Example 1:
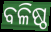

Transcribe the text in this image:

ବଳିଷ୍ଠ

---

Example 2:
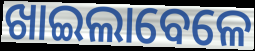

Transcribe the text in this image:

ଖାଇଲାବେଳେ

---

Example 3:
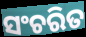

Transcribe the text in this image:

ସଂଚରିତ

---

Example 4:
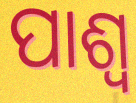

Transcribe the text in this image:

ପାଶ୍ୱ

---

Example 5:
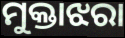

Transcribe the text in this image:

ମୁକ୍ତାଝରା